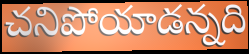
చనిపోయాడన్నది